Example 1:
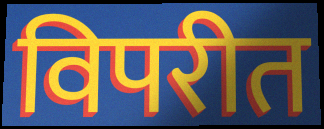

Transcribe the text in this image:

विपरीत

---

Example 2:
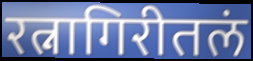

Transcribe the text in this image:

रत्नागिरीतलं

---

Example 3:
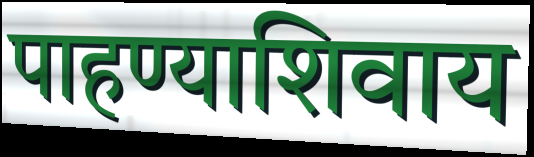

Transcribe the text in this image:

पाहण्याशिवाय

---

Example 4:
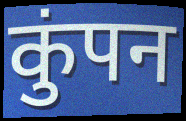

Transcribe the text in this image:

कुंपन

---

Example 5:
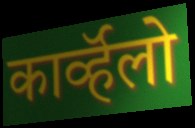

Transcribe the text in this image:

कार्व्हॅलो